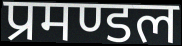
प्रमण्डल